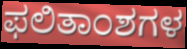
ಫಲಿತಾಂಶಗಳ